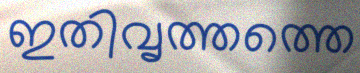
ഇതിവൃത്തത്തെ